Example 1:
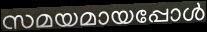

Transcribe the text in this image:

സമയമായപ്പോൾ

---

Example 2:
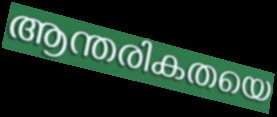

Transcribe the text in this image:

ആന്തരികതയെ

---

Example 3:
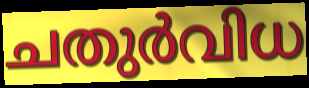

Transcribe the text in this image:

ചതുർവിധ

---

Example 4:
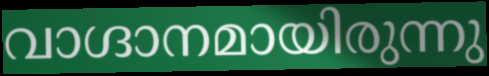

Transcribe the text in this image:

വാഗ്ദാനമായിരുന്നു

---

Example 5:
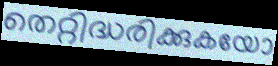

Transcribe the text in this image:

തെറ്റിദ്ധരിക്കുകയോ